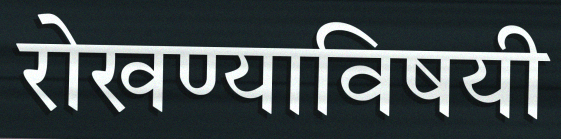
रोखण्याविषयी